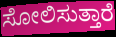
ಸೋಲಿಸುತ್ತಾರೆ